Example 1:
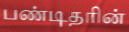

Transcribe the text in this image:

பண்டிதரின்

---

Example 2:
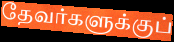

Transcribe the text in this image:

தேவர்களுக்குப்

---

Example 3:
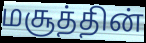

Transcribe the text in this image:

மசூத்தின்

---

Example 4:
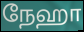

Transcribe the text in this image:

நேஹா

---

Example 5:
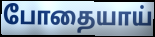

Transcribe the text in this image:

போதையாய்